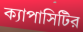
ক্যাপাসিটির